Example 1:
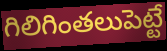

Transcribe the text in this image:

గిలిగింతలుపెట్టే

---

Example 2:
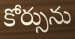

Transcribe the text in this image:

కోర్సును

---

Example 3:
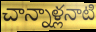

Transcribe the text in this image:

చాన్నాళ్లనాటి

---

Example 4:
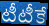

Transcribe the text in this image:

టీటీకే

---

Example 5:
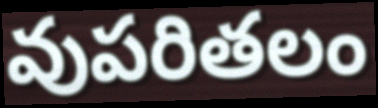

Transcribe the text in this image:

వుపరితలం